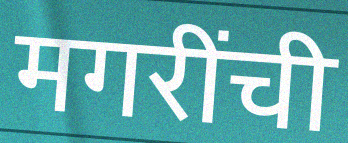
मगरींची